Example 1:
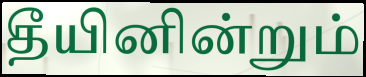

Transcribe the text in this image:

தீயினின்றும்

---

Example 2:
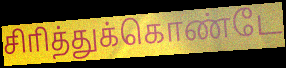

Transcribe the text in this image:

சிரித்துக்கொண்டே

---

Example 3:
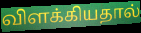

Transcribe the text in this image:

விளக்கியதால்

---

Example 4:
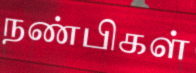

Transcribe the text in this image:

நண்பிகள்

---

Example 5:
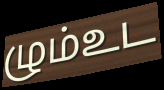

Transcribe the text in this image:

ழும்உட